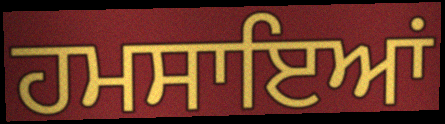
ਹਮਸਾਇਆਂ